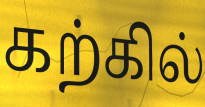
கற்கில்